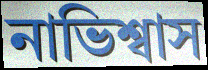
নাভিশ্বাস